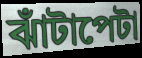
ঝাঁটাপেটা